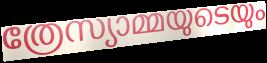
ത്രേസ്യാമ്മയുടെയും